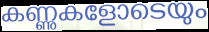
കണ്ണുകളോടെയും